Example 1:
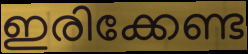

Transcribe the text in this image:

ഇരിക്കേണ്ട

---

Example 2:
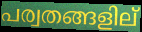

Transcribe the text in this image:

പര്വതങ്ങളില്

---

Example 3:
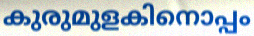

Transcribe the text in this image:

കുരുമുളകിനൊപ്പം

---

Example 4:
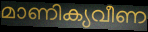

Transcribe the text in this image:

മാണിക്യവീണ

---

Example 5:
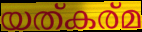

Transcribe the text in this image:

യത്കര്മ